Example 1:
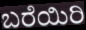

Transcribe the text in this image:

ಬರೆಯಿರಿ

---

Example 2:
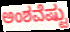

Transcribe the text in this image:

ಅಂಶವೆಷ್ಟು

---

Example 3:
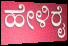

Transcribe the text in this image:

ಹೇಳಿರೈ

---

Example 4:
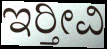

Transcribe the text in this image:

ಇರ‍್ತೀವಿ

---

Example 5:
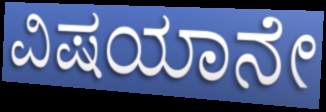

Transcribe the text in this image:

ವಿಷಯಾನೇ